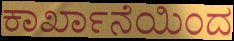
ಕಾರ್ಖಾನೆಯಿಂದ